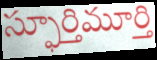
స్ఫూర్తిమూర్తి